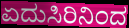
ಏದುಸಿರಿನಿಂದ